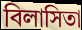
বিলাসিতা